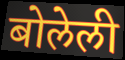
बोलेली